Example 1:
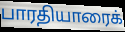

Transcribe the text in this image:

பாரதியாரைக்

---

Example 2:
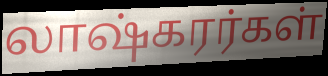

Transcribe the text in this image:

லாஷ்கரர்கள்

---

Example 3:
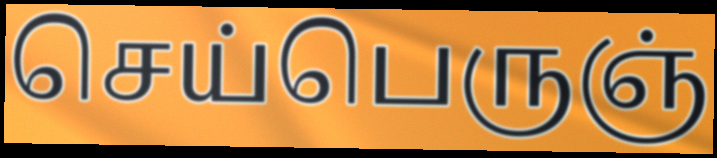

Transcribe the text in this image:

செய்பெருஞ்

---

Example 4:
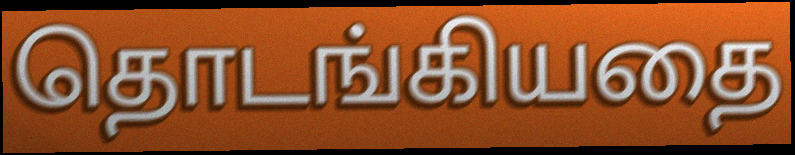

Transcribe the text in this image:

தொடங்கியதை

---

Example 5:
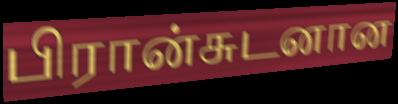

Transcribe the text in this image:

பிரான்சுடனான